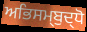
ਅਭਿਸਮ੍ਬੁਦ੍ਧੋ